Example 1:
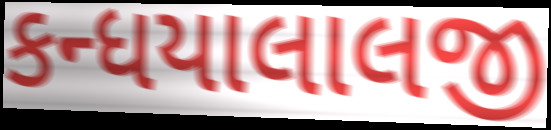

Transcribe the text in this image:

કન્ધયાલાલજી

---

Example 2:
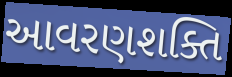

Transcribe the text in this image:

આવરણશક્તિ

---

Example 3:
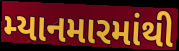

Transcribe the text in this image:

મ્યાનમારમાંથી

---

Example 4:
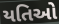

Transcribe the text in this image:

યતિઓ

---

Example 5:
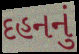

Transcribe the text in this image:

દહનનું